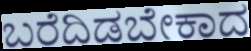
ಬರೆದಿಡಬೇಕಾದ